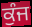
ਕੁੰਜ